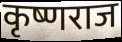
कृष्णराज